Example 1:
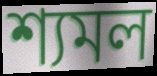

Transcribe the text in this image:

শ্যমল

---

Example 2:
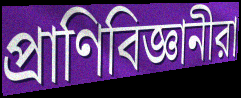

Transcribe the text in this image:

প্রাণিবিজ্ঞানীরা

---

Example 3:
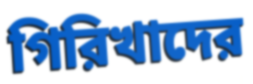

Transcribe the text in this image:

গিরিখাদের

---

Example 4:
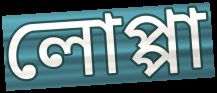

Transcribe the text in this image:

লোপ্পা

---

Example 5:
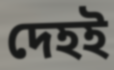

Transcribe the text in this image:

দেহই